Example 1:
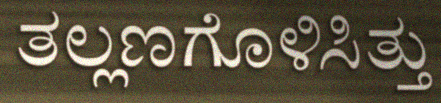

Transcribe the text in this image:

ತಲ್ಲಣಗೊಳಿಸಿತ್ತು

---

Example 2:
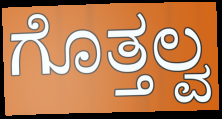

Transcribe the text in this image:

ಗೊತ್ತಲ್ವ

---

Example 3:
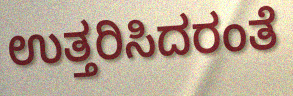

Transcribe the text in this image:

ಉತ್ತರಿಸಿದರಂತೆ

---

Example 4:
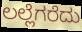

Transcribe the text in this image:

ಲಲ್ಲೆಗರೆದು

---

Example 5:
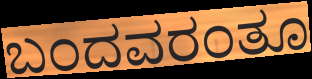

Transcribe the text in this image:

ಬಂದವರಂತೂ